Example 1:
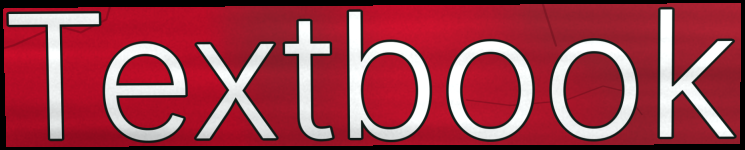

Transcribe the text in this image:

Textbook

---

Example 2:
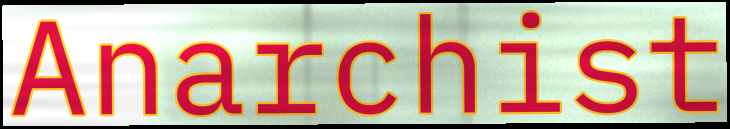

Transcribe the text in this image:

Anarchist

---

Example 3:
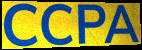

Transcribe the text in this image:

CCPA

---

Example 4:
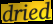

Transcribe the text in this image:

dried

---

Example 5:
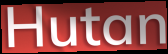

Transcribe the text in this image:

Hutan